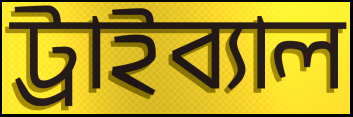
ট্রাইব্যাল